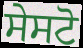
ਸੇਸਟੋ